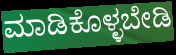
ಮಾಡಿಕೊಳ್ಳಬೇಡಿ